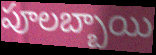
పూలబ్బాయి